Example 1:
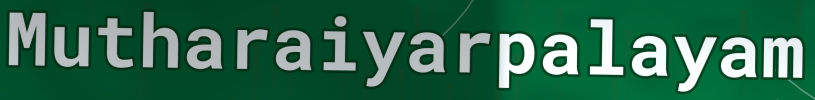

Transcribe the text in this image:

Mutharaiyarpalayam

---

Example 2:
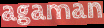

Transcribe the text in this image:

agaman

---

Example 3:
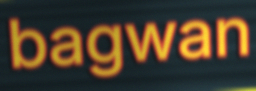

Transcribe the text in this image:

bagwan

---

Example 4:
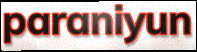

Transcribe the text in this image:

paraniyun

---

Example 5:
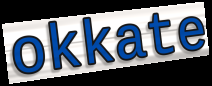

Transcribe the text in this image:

okkate